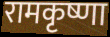
रामकृष्णा